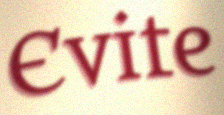
Evite